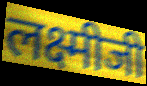
लक्ष्मीजी